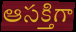
ఆసక్తిగా